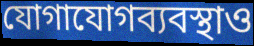
যোগাযোগব্যবস্থাও